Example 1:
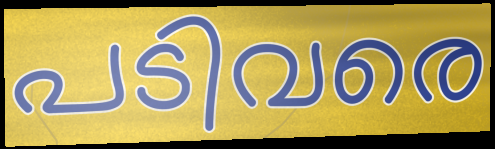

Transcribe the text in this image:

പടിവരെ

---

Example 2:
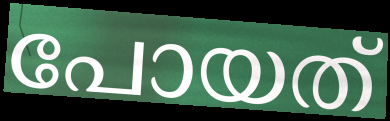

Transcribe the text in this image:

പോയത്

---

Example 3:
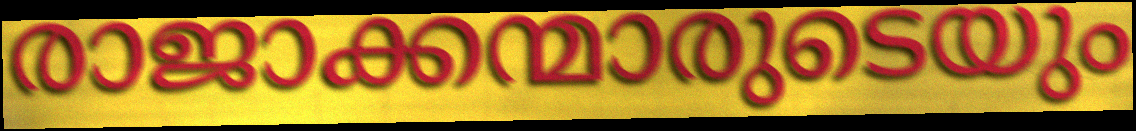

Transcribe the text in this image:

രാജാക്കന്മാരുടെയും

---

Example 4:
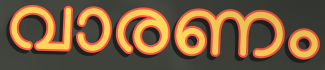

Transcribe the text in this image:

വാരണം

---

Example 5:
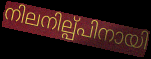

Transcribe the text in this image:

നിലനില്പ്പിനായി